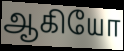
ஆகியோ